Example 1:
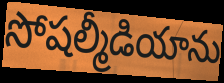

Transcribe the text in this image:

సోషల్మీడియాను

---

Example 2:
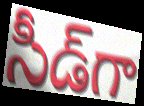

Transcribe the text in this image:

సీడ్‌గా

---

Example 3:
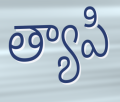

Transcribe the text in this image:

త్యాపి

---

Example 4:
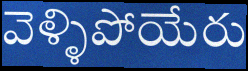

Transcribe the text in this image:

వెళ్ళిపోయేరు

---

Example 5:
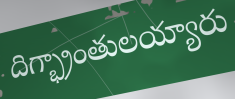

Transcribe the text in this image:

దిగ్భ్రాంతులయ్యారు